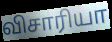
விசாரியா